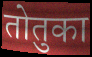
तोतुका